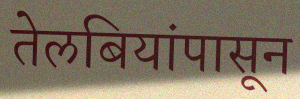
तेलबियांपासून